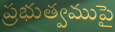
ప్రభుత్వముపై